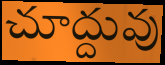
చూద్దువు